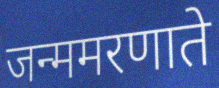
जन्ममरणाते